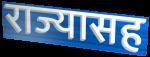
राज्यासह